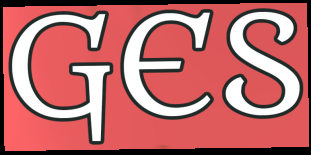
GES